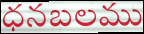
ధనబలము